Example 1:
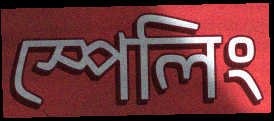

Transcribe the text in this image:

স্পেলিং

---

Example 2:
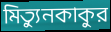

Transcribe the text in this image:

মিত্যুনকাকুর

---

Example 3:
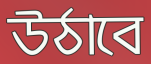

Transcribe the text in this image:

উঠাবে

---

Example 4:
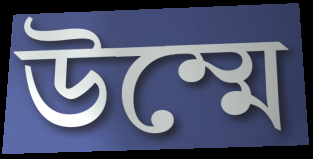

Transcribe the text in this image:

উম্মে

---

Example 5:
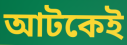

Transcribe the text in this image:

আটকেই